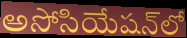
అసోసియేషన్‌లో